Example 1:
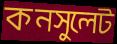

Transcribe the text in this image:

কনসুলেট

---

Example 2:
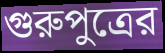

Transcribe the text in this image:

গুরুপুত্রের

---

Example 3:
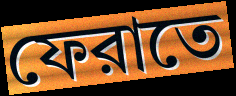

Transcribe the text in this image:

ফেরাতে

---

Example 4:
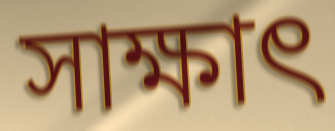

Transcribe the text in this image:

সাক্ষাৎ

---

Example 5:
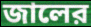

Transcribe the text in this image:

জালের